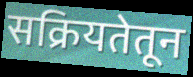
सक्रियतेतून